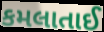
કમલાતાઈ